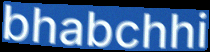
bhabchhi